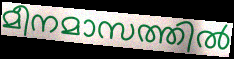
മീനമാസത്തിൽ